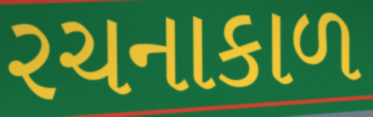
રચનાકાળ